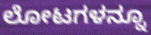
ಲೋಟಗಳನ್ನೂ